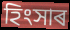
হিংসাৰ